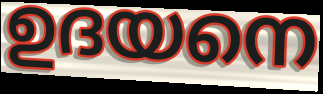
ഉദയനെ